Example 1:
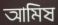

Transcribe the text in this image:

আমিষ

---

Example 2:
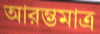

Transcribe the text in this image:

আরম্ভমাত্র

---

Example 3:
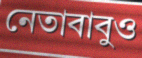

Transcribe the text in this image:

নেতাবাবুও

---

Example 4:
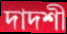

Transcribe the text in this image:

দাদশী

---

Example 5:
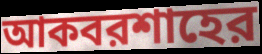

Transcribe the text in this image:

আকবরশাহের